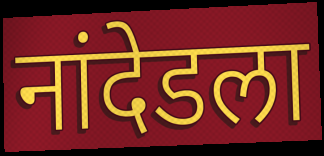
नांदेडला